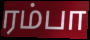
ரம்பா